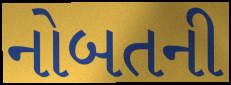
નોબતની